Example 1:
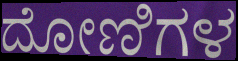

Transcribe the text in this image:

ದೋಣಿಗಳ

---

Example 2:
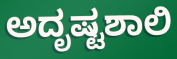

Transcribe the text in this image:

ಅದೃಷ್ಟಶಾಲಿ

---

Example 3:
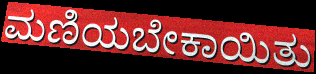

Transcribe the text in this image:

ಮಣಿಯಬೇಕಾಯಿತು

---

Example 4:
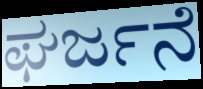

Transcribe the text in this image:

ಘರ್ಜನೆ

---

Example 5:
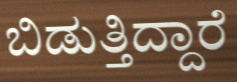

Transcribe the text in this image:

ಬಿಡುತ್ತಿದ್ದಾರೆ